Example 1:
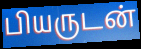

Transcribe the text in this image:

பியருடன்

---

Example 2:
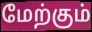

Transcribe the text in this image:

மேற்கும்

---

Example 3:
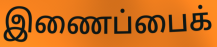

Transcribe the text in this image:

இணைப்பைக்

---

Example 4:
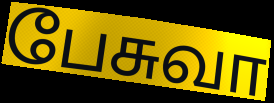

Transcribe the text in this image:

பேசுவா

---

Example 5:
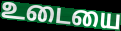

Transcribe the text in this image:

உடையை